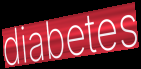
diabetes